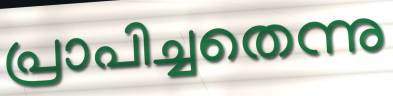
പ്രാപിച്ചതെന്നു